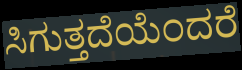
ಸಿಗುತ್ತದೆಯೆಂದರೆ